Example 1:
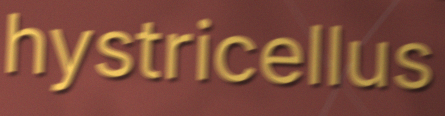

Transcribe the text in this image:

hystricellus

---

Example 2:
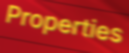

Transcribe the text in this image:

Properties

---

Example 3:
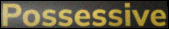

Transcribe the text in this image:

Possessive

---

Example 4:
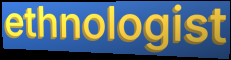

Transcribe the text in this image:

ethnologist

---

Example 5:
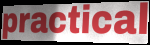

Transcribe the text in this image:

practical